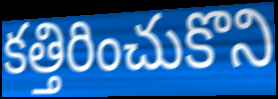
కత్తిరించుకొని